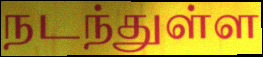
நடந்துள்ள